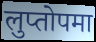
लुप्तोपमा